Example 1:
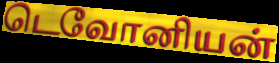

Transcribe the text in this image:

டெவோனியன்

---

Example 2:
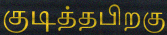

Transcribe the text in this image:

குடித்தபிறகு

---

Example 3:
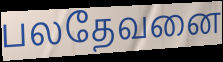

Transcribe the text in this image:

பலதேவனை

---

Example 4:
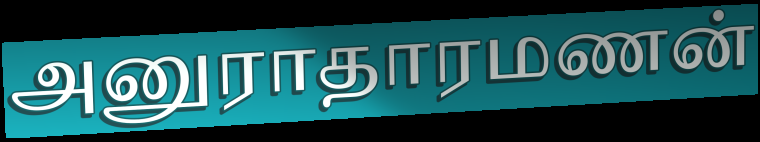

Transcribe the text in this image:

அனுராதாரமணன்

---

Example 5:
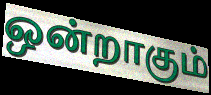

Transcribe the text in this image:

ஒன்றாகும்